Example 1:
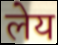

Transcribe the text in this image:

लेय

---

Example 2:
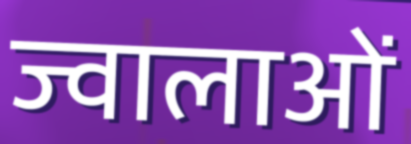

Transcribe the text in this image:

ज्वालाओं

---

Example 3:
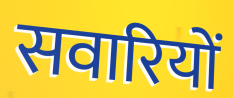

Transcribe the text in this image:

सवारियों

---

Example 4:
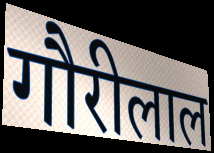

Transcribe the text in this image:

गौरीलाल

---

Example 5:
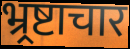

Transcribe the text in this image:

भ्र्रष्टाचार